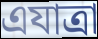
এযাত্রা